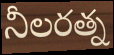
నీలరత్న